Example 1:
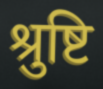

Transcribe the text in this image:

श्रुष्टि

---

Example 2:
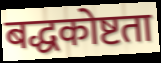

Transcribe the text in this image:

बद्धकोष्टता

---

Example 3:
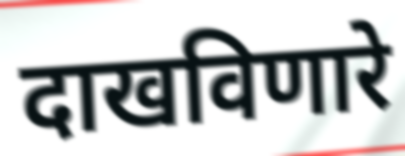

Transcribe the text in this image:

दाखविणारे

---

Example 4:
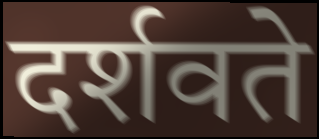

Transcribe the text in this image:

दर्शवते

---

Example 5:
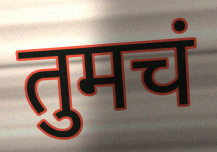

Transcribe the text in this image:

तुमचं